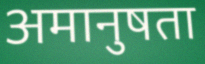
अमानुषता